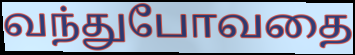
வந்துபோவதை